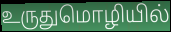
உருதுமொழியில்